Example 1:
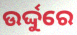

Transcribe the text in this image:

ଉର୍ଦ୍ଦୁରେ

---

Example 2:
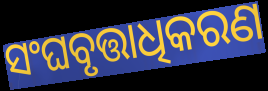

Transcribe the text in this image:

ସଂଘବୃତ୍ତାଧିକରଣ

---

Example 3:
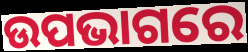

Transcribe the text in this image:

ଉପଭାଗରେ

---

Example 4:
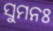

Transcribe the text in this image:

ସୁମନଃ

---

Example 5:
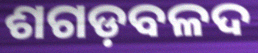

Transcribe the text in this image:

ଶଗଡ଼ବଳଦ